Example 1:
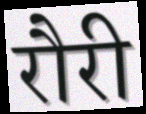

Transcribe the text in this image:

रौरी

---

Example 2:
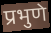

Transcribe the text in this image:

प्रभुणे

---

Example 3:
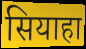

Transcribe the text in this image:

सियाहा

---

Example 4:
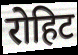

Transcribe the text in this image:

रोहिट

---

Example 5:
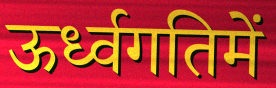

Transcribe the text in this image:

ऊर्ध्वगतिमें